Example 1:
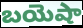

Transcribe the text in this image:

బయెషా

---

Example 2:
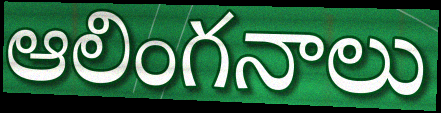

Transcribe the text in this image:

ఆలింగనాలు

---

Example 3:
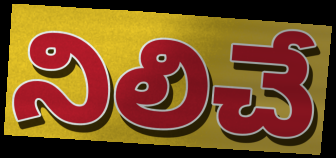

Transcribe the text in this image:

నిలిచే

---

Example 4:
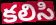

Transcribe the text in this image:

కలిసి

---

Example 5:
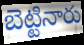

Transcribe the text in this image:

బెట్టినారు